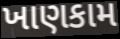
ખાણકામ